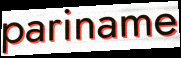
pariname